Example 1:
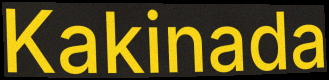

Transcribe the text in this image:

Kakinada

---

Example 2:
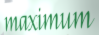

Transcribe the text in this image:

maximum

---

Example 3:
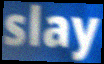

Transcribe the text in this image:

slay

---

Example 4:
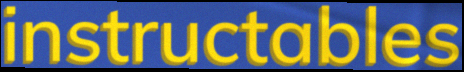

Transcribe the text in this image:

instructables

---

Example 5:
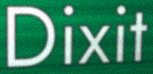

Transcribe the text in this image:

Dixit